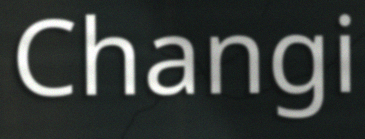
Changi